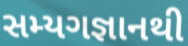
સમ્યગજ્ઞાનથી